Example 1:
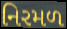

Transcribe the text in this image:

નિરમળ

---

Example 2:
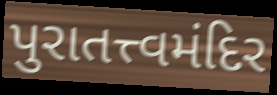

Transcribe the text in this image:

પુરાતત્ત્વમંદિર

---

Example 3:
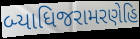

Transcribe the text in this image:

બ્યાધિજરામરણેહિ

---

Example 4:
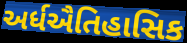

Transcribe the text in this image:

અર્ધઐતિહાસિક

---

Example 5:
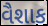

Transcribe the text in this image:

વૈશાક